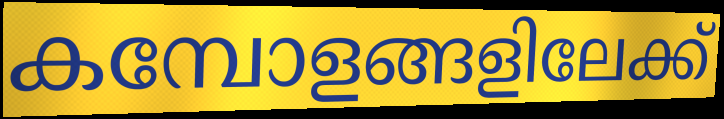
കമ്പോളങ്ങളിലേക്ക്